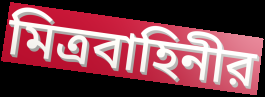
মিত্রবাহিনীর